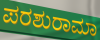
ಪರಶುರಾಮಾ